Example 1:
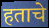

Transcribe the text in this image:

हताचे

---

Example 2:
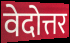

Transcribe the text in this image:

वेदोत्तर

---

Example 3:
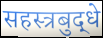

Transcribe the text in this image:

सहस्त्रबुद्धे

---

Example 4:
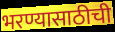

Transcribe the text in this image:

भरण्यासाठीची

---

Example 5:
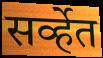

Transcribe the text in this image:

सर्व्हेत